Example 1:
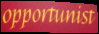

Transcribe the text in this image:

opportunist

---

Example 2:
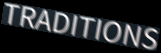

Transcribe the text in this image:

TRADITIONS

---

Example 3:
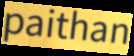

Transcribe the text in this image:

paithan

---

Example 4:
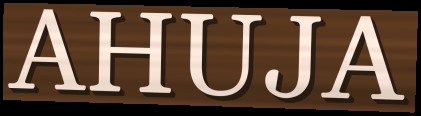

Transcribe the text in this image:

AHUJA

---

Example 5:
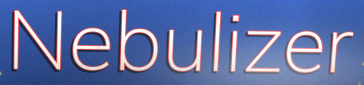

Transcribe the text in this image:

Nebulizer